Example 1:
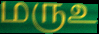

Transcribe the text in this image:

மருஉ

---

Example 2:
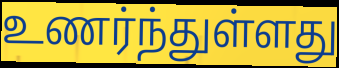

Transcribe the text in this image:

உணர்ந்துள்ளது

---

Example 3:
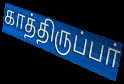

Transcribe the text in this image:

காத்திருப்பர்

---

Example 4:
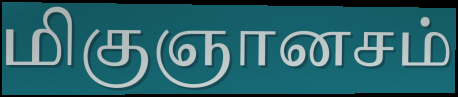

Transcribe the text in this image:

மிகுஞானசம்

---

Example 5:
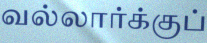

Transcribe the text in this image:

வல்லார்க்குப்